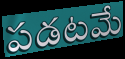
పడటమే